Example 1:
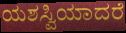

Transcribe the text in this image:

ಯಶಸ್ವಿಯಾದರೆ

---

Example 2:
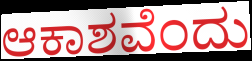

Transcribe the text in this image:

ಆಕಾಶವೆಂದು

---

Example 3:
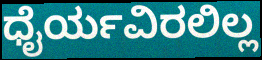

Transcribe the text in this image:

ಧೈರ್ಯವಿರಲಿಲ್ಲ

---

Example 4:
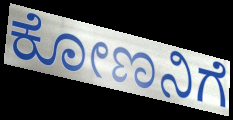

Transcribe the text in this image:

ಕೋಣನಿಗೆ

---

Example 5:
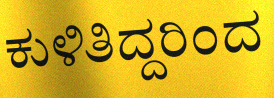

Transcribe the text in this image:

ಕುಳಿತಿದ್ದರಿಂದ